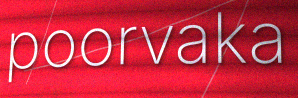
poorvaka